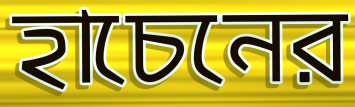
হাচেনের